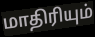
மாதிரியும்